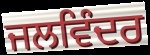
ਜਲਵਿੰਦਰ